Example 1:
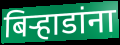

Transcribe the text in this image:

बिऱ्हाडांना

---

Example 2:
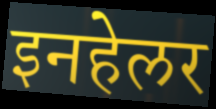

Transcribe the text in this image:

इनहेलर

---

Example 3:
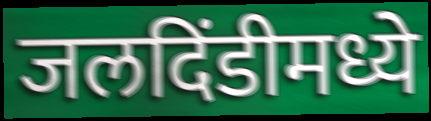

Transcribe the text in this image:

जलदिंडीमध्ये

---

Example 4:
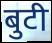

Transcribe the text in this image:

बुटी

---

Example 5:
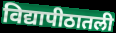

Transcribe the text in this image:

विद्यापीठातली